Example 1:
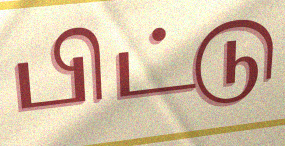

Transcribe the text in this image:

பிட்டு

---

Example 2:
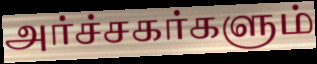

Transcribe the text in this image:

அர்ச்சகர்களும்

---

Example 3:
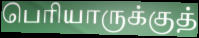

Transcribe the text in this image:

பெரியாருக்குத்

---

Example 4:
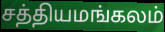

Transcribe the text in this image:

சத்தியமங்கலம்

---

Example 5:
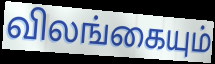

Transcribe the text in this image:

விலங்கையும்